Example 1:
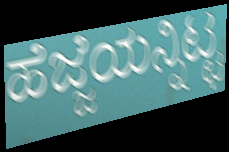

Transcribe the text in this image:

ಹೆಜ್ಜೆಯನ್ನಿಟ್ಟ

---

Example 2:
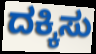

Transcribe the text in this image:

ದಕ್ಕಿಸು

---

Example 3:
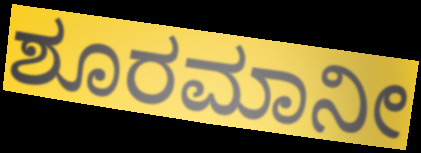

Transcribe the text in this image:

ಶೂರಮಾನೀ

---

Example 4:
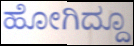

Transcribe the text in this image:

ಹೋಗಿದ್ದೂ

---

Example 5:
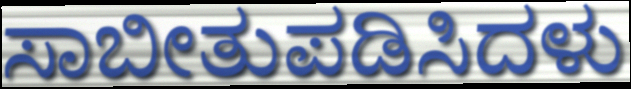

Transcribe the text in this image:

ಸಾಬೀತುಪಡಿಸಿದಳು